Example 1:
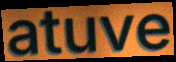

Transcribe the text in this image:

atuve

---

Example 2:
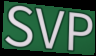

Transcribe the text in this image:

SVP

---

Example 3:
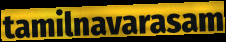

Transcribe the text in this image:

tamilnavarasam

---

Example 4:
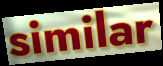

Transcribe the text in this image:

similar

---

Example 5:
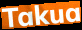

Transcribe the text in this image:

Takua